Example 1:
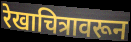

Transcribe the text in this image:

रेखाचित्रावरून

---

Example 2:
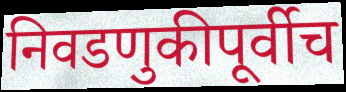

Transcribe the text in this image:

निवडणुकीपूर्वीच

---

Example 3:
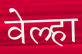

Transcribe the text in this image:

वेल्हा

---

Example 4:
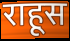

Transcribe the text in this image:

राहूस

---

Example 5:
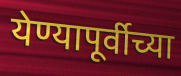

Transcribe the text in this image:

येण्यापूर्वीच्या